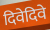
दिवेदिवे